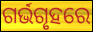
ଗର୍ଭଗୃହରେ